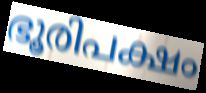
ഭൂരിപക്ഷം